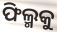
ଫିଲ୍ମକୁ